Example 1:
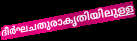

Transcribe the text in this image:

ദീർഘചതുരാകൃതിയിലുള്ള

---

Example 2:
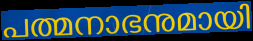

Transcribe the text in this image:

പത്മനാഭനുമായി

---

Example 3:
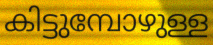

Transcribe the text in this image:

കിട്ടുമ്പോഴുള്ള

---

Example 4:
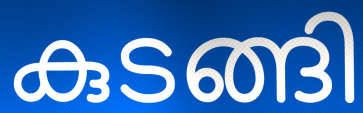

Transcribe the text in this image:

കുടങ്ങി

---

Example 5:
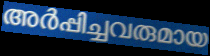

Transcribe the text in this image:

അർപ്പിച്ചവരുമായ